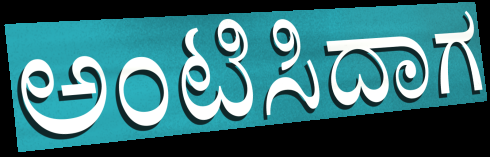
ಅಂಟಿಸಿದಾಗ